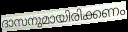
ദാസനുമായിരിക്കണം